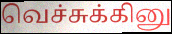
வெச்சுக்கினு